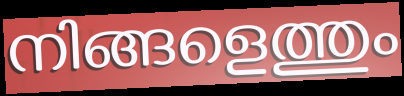
നിങ്ങളെത്തും